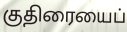
குதிரையைப்